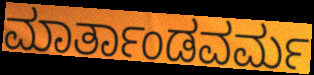
ಮಾರ್ತಾಂಡವರ್ಮ